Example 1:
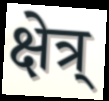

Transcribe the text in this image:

क्षेत्र्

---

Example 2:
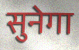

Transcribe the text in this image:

सुनेगा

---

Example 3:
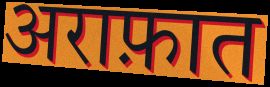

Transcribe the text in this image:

अराफ़ात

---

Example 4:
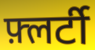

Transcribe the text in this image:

फ़्लर्टी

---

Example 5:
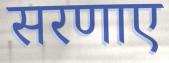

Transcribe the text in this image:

सरणाए